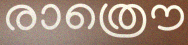
രാത്രൌ